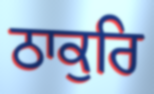
ਠਾਕੁਰਿ